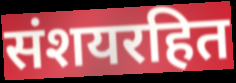
संशयरहित